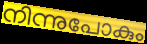
നിന്നുപോകും